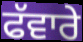
ਫੱਵਾਰੇ